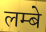
लम्बे